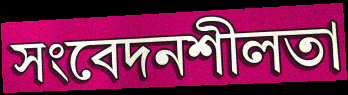
সংবেদনশীলতা